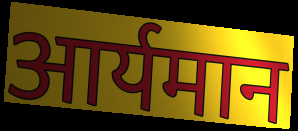
आर्यमान